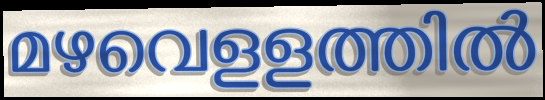
മഴവെളളത്തിൽ